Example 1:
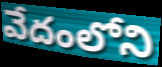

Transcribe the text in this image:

వేదంలోని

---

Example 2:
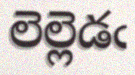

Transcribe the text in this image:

లెల్లెడఁ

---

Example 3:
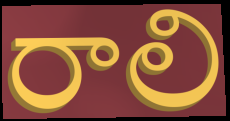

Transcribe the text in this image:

రాలి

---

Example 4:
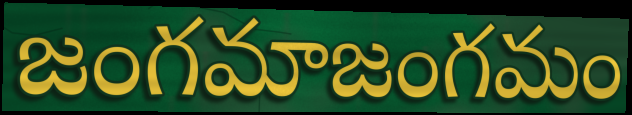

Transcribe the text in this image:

జంగమాజంగమం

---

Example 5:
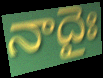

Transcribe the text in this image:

నాదైః